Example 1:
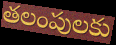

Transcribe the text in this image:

తలంపులకు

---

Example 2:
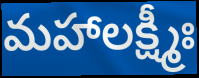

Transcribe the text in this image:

మహాలక్ష్మీః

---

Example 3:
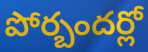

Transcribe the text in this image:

పోర్బందర్లో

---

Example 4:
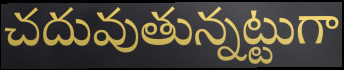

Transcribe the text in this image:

చదువుతున్నట్టుగా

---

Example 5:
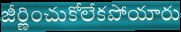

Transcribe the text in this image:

జీర్ణించుకోలేకపోయారు